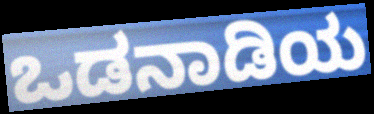
ಒಡನಾಡಿಯ